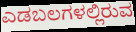
ಎಡಬಲಗಳಲ್ಲಿರುವ